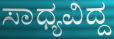
ಸಾಧ್ಯವಿದ್ದ